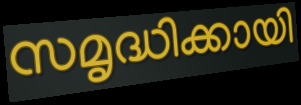
സമൃദ്ധിക്കായി